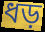
ধড়